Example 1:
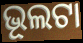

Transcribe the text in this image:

ଭୂଲଟା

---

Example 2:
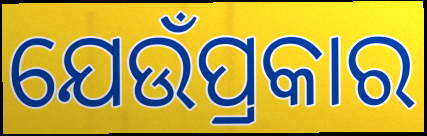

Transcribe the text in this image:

ଯେଉଁପ୍ରକାର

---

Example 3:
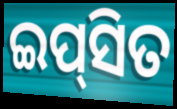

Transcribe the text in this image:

ଇପ୍‍ସିତ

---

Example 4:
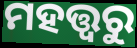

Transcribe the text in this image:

ମହତ୍ତ୍ୱରୁ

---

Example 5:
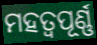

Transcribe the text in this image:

ମହତ୍ଵପୂର୍ଣ୍ଣ